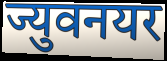
ज्युवनयर